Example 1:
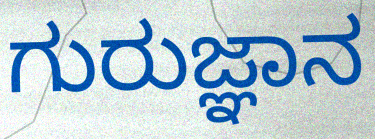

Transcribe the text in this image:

ಗುರುಜ್ಞಾನ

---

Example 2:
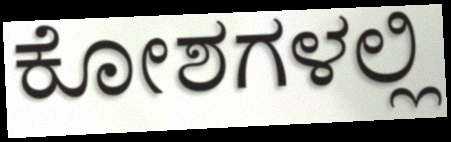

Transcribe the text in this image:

ಕೋಶಗಳಲ್ಲಿ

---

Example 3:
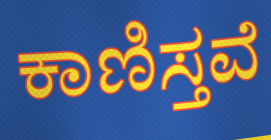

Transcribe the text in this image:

ಕಾಣಿಸ್ತವೆ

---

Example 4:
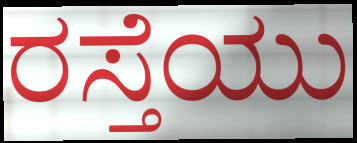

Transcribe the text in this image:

ರಸ್ತೆಯು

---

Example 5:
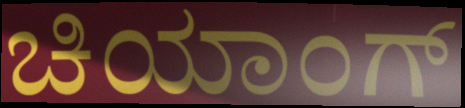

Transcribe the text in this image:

ಚಿಯಾಂಗ್